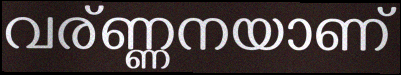
വര്ണ്ണനയാണ്